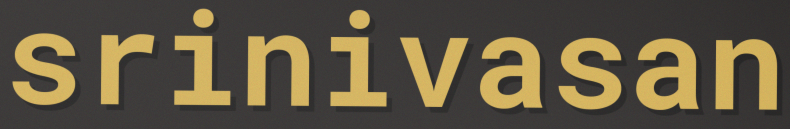
srinivasan